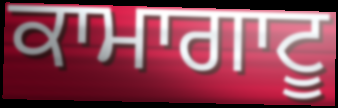
ਕਾਮਾਗਾਟੂ